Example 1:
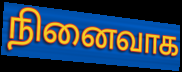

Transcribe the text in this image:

நினைவாக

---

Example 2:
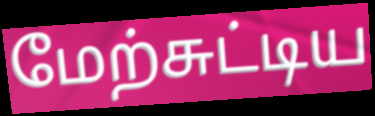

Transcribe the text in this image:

மேற்சுட்டிய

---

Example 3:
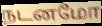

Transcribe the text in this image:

நடனமோ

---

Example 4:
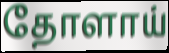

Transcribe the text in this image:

தோளாய்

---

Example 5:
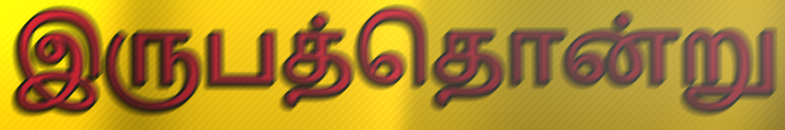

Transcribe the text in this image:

இருபத்தொன்று